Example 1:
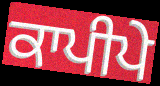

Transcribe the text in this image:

ਕਾਪੀਪੇ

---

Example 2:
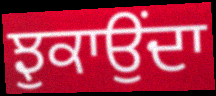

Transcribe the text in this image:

ਝੁਕਾਉਂਦਾ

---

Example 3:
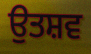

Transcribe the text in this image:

ਉਤਸ਼ਵ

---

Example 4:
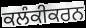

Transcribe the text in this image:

ਕਲੰਕੀਕਰਨ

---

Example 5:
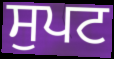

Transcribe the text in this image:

ਸੁਪਟ